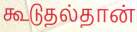
கூடுதல்தான்